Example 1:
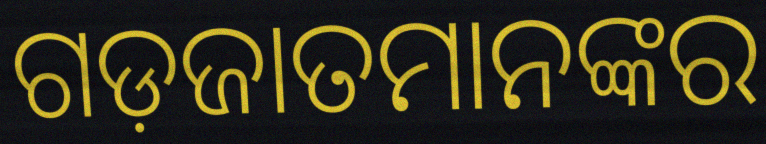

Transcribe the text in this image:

ଗଡ଼ଜାତମାନଙ୍କର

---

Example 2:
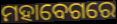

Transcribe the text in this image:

ମହାବେଗରେ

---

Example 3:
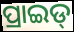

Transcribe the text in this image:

ପ୍ରାଇଡ୍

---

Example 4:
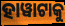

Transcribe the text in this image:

ହାୱାଟାକୁ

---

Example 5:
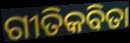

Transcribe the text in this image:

ଗୀତିକବିତା